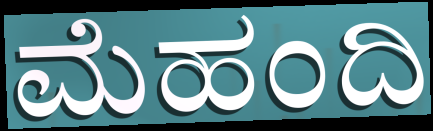
ಮೆಹಂದಿ